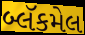
બ્લૅકમેલ